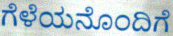
ಗೆಳೆಯನೊಂದಿಗೆ